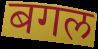
बगल